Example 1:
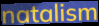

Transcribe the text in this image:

natalism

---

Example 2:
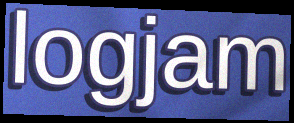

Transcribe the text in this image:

logjam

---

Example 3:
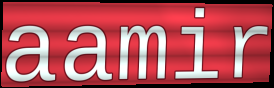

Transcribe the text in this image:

aamir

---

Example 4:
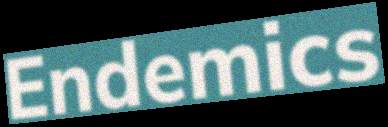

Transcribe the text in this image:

Endemics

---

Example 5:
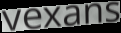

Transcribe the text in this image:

vexans